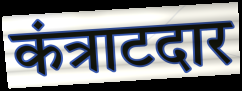
कंत्राटदार